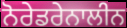
ਨੋਰੇਡਰੇਨਾਲੀਨ